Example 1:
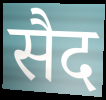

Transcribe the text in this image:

सैद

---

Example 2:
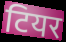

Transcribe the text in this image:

टियर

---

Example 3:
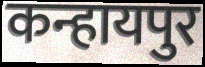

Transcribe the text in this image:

कन्हायपुर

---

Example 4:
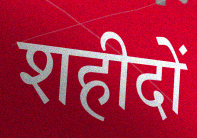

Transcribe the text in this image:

शहीदों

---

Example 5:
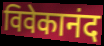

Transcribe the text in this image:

विवेकानंद